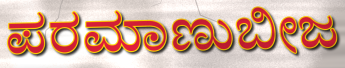
ಪರಮಾಣುಬೀಜ